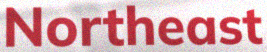
Northeast